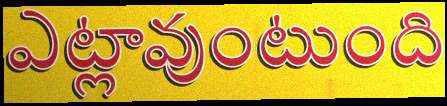
ఎట్లావుంటుంది